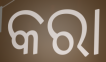
କରା